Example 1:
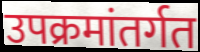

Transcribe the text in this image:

उपक्रमांतर्गत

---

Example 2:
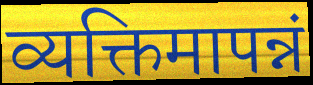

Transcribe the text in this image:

व्यक्तिमापन्नं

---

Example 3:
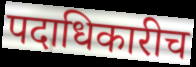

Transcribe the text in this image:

पदाधिकारीच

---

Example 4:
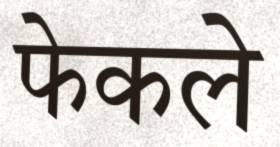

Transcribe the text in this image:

फेकले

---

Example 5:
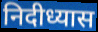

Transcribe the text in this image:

निदीध्यास